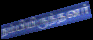
நம்பியிருந்தனர்